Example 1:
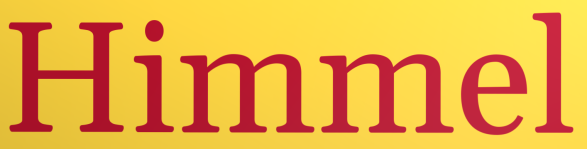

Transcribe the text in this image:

Himmel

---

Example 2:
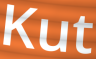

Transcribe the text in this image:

Kut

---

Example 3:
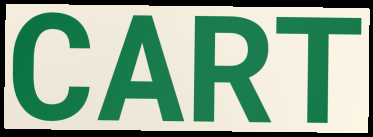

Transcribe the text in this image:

CART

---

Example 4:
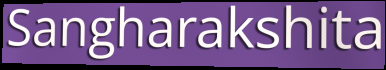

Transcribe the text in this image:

Sangharakshita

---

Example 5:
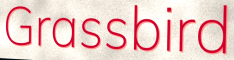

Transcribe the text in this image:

Grassbird